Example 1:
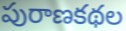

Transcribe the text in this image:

పురాణకథల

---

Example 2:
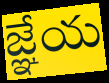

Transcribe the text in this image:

జ్ఞేయ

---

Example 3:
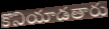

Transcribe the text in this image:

కొనియాడతారు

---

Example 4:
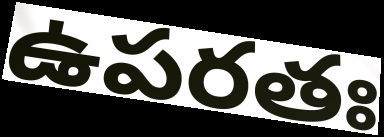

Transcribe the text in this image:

ఉపరతః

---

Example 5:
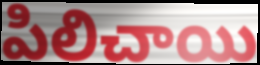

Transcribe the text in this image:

పిలిచాయి